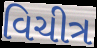
વિચીત્ર